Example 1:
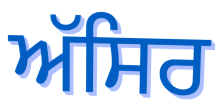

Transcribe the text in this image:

ਅੱਸਿਰ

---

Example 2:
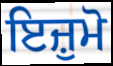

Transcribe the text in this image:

ਇਜ਼ੁਮੋ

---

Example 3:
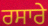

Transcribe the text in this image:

ਰਸਾਰੇ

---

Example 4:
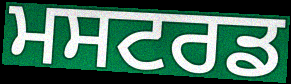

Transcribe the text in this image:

ਮਸਟਰਡ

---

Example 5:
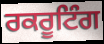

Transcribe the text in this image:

ਰਕਰੂਟਿੰਗ